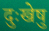
दुःखेषु